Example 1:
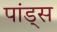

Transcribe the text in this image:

पांड्स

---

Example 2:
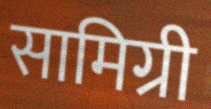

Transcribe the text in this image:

सामिग्री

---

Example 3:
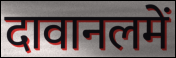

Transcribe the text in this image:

दावानलमें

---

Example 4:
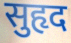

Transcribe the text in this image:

सुहृद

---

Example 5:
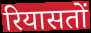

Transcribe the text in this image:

रियासतों